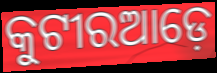
କୁଟୀରଆଡ଼େ